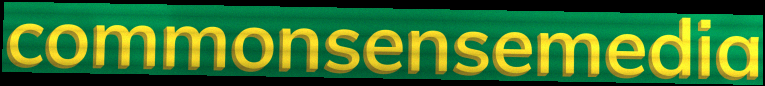
commonsensemedia